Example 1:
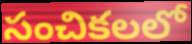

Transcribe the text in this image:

సంచికలలో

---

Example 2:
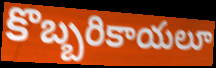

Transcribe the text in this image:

కొబ్బరికాయలూ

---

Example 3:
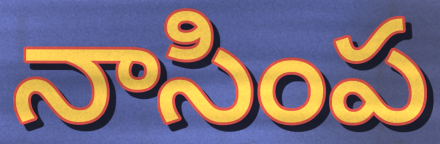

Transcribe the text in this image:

నాసింప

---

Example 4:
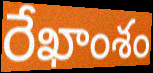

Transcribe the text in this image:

రేఖాంశం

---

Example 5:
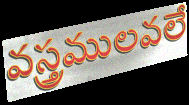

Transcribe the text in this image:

వస్త్రములవలే